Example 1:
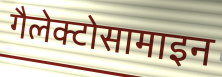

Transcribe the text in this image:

गैलेक्टोसामाइन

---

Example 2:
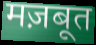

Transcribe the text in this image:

मज़बूत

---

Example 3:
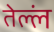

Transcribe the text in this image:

तेल्लं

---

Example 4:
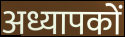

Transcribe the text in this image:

अध्यापकों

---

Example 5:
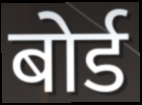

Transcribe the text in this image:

बोर्ड